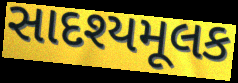
સાદશ્યમૂલક